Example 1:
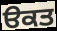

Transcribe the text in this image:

ੳਕਤ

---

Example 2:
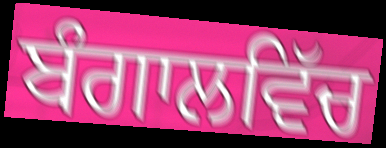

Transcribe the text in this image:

ਬੰਗਾਲਵਿੱਚ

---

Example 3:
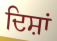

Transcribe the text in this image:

ਦਿਸ਼ਾਂ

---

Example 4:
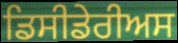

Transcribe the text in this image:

ਡਿਸੀਡੇਰੀਅਸ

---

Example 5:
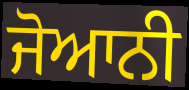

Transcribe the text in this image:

ਜੋਆਨੀ